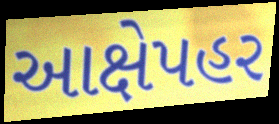
આક્ષેપહર